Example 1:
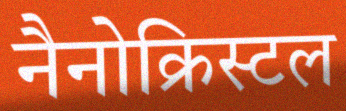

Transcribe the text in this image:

नैनोक्रिस्टल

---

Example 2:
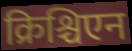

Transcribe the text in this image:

क्रिश्चिएन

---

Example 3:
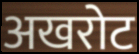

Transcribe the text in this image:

अखरोट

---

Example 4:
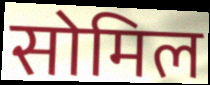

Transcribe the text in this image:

सोमिल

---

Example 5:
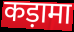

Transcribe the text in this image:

कड़ामा